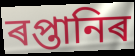
ৰপ্তানিৰ